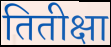
तितीक्षा